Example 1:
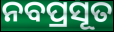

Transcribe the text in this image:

ନବପ୍ରସୂତ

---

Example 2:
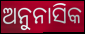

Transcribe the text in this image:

ଅନୁନାସିକ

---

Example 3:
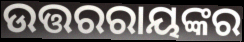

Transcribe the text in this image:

ଉତ୍ତରରାୟଙ୍କର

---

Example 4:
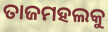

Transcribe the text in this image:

ତାଜମହଲକୁ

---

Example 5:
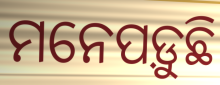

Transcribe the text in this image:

ମନେପଡ଼ୁଛି